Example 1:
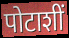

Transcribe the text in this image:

पोटाशीं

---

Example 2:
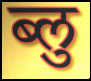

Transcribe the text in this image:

ब्लु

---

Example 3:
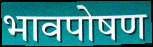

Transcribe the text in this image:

भावपोषण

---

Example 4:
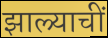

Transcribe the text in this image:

झाल्याचीं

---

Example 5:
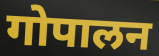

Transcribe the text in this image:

गोपालन